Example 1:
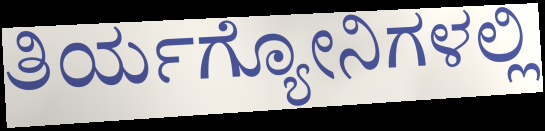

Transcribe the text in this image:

ತಿರ್ಯಗ್ಯೋನಿಗಳಲ್ಲಿ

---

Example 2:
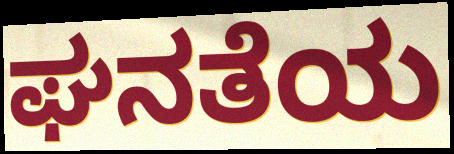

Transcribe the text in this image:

ಘನತೆಯ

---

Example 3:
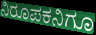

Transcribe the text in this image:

ನಿರೂಪಕನಿಗೂ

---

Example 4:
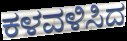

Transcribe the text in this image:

ಕಳವಳಿಸಿದ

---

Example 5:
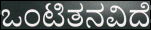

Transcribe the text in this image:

ಒಂಟಿತನವಿದೆ